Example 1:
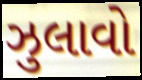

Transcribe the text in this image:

ઝુલાવો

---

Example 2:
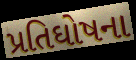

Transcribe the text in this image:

પ્રતિઘોષના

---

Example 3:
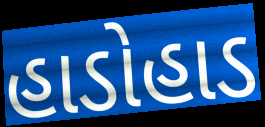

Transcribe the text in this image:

હાડોહાડ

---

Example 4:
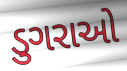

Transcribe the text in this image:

ડુગરાઓ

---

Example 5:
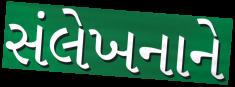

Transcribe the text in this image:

સંલેખનાને